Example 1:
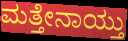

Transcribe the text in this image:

ಮತ್ತೇನಾಯ್ತು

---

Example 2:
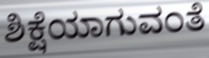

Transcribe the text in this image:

ಶಿಕ್ಷೆಯಾಗುವಂತೆ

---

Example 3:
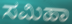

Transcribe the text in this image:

ಸಮಿಹಾ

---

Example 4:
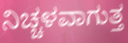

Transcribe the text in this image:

ನಿಚ್ಚಳವಾಗುತ್ತ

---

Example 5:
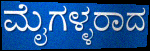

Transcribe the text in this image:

ಮೈಗಳ್ಳರಾದ